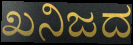
ಖನಿಜದ